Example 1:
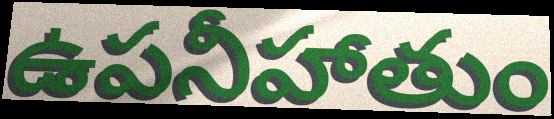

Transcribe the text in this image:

ఉపనీహాతుం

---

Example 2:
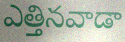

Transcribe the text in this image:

ఎత్తినవాడా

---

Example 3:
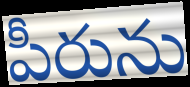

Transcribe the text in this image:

పీరును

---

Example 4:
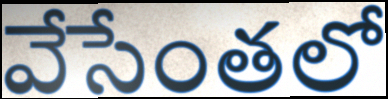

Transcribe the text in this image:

వేసేంతలో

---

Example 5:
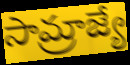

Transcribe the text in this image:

సామ్రాజ్యే